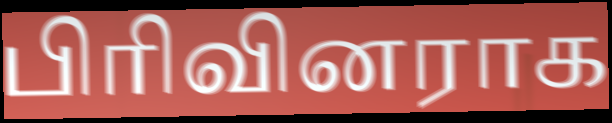
பிரிவினராக